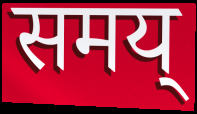
समय्